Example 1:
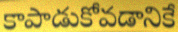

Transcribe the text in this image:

కాపాడుకోవడానికే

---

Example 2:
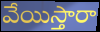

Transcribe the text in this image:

వేయిస్తారా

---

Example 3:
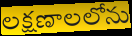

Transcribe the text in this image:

లక్షణాలలోను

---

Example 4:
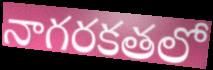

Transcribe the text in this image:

నాగరకతలో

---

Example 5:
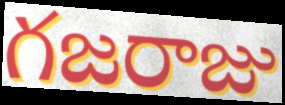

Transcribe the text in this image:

గజరాజు